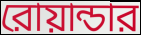
রোয়ান্ডার